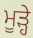
ਮੂੜ੍ਹੇ